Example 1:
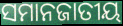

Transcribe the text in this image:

ସମାନଜାତୀୟ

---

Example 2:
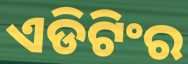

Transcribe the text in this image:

ଏଡିଟିଂର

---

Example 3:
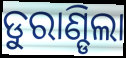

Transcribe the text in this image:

ଡୁରାଣ୍ଡିଲା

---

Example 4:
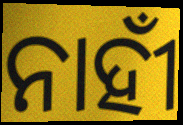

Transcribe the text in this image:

ନାହୀଁ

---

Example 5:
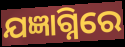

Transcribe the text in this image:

ଯଜ୍ଞାଗ୍ନିରେ